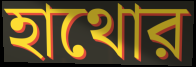
হাথোর